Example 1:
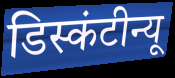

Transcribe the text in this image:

डिस्कंटीन्यू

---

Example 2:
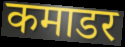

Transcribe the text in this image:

कमाडर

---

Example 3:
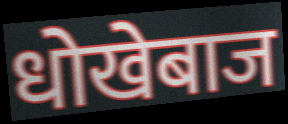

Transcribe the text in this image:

धोखेबाज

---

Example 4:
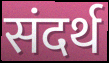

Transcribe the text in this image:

संदर्थ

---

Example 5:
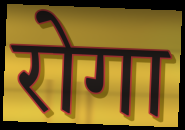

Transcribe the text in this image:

रोगा